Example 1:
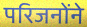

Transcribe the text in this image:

परिजनोंने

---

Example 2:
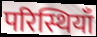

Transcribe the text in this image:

परिस्थियाँ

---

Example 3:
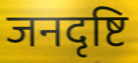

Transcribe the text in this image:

जनदृष्टि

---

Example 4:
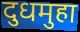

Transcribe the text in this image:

दुधमुहा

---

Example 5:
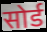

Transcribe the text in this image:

सोर्ड